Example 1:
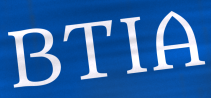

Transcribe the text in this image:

BTIA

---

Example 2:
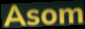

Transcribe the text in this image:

Asom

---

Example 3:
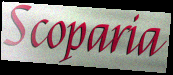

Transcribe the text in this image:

Scoparia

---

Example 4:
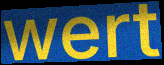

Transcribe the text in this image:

wert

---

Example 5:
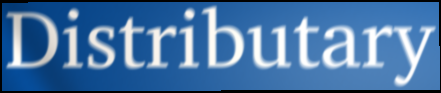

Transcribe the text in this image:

Distributary